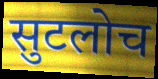
सुटलोच